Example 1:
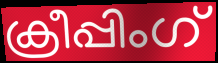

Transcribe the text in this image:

ക്രീപ്പിംഗ്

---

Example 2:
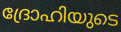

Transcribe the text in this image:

ദ്രോഹിയുടെ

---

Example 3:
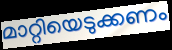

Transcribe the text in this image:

മാറ്റിയെടുക്കണം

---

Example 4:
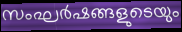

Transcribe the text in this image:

സംഘർഷങ്ങളുടെയും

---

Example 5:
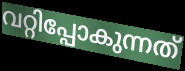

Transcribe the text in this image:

വറ്റിപ്പോകുന്നത്